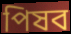
পিষব